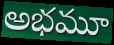
అభమూ